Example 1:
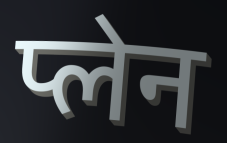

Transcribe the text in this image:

प्लेन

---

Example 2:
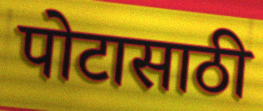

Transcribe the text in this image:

पोटासाठी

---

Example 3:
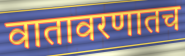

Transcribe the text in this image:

वातावरणातच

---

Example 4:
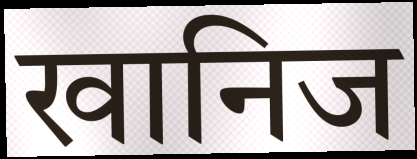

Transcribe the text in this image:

खानिज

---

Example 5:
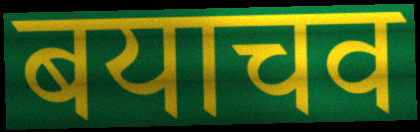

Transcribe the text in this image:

बयाचव